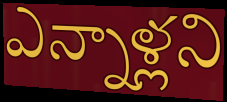
ఎన్నాళ్లని